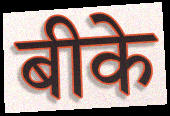
बीके